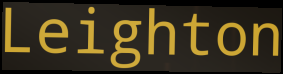
Leighton